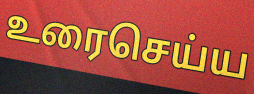
உரைசெய்ய